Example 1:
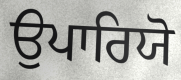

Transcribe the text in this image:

ਉਪਾਰਿਯੋ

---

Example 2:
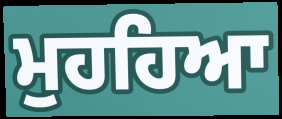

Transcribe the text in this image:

ਮੁਹਹਿਆ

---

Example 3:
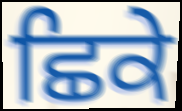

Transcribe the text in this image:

ਛਿਕੇ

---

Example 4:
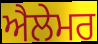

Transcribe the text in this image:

ਐਲੇਮਰ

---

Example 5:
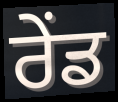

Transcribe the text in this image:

ਰੇਂਡ